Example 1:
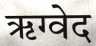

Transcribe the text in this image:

ॠग्वेद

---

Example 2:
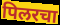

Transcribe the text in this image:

पिलरचा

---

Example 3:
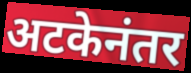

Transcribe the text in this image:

अटकेनंतर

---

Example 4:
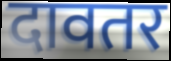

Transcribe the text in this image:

दावतर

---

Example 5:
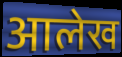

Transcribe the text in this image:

आलेख